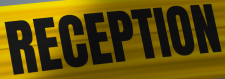
RECEPTION